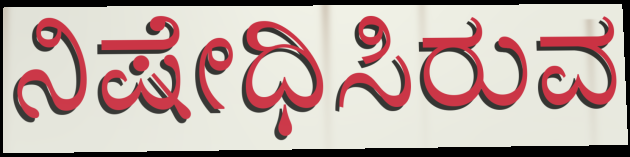
ನಿಷೇಧಿಸಿರುವ